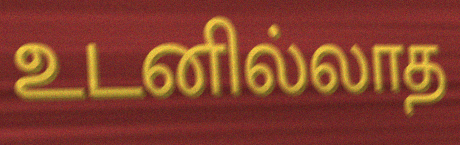
உடனில்லாத